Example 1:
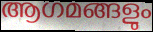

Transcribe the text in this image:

ആഗമങ്ങളും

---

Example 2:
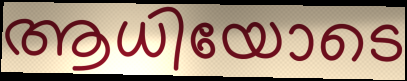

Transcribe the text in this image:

ആധിയോടെ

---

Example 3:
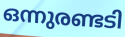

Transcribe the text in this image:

ഒന്നുരണ്ടടി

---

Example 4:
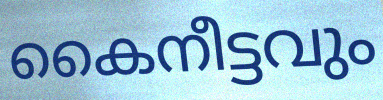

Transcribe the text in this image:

കൈനീട്ടവും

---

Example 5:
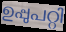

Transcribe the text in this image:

ഉപ്പുപറ്റി